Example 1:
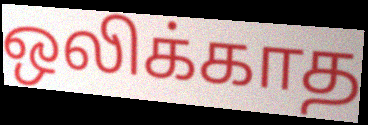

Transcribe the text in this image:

ஒலிக்காத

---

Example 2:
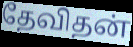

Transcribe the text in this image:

தேவிதன்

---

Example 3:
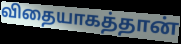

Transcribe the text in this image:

விதையாகத்தான்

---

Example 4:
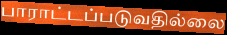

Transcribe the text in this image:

பாராட்டப்படுவதில்லை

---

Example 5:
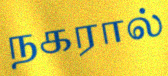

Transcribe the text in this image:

நகரால்